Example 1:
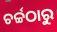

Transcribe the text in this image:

ଚର୍ଚ୍ଚଠାରୁ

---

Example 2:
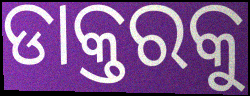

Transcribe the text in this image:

ଡାକ୍ତରକୁ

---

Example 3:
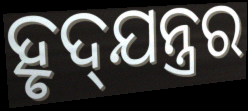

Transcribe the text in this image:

ହୃଦ୍‍ଯନ୍ତ୍ରର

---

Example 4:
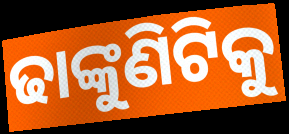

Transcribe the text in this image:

ଢାଙ୍କୁଣିଟିକୁ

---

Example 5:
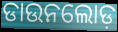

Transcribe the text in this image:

ଡାଉନଲୋଡ଼